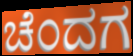
ಚೆಂದಗ